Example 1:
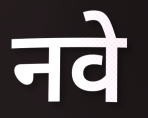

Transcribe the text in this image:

नवे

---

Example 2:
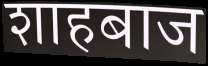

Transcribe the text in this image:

शाहबाज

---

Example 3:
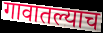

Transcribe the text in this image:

गावातल्याच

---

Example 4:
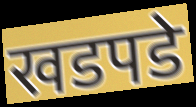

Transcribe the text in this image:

खडपडे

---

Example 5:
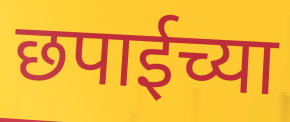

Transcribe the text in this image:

छपाईच्या